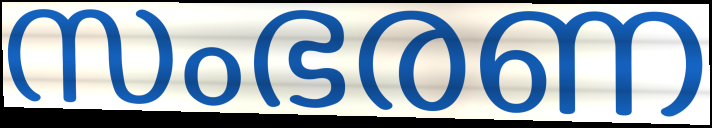
സംഭരണ